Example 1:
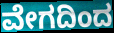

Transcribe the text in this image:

ವೇಗದಿಂದ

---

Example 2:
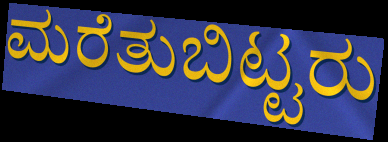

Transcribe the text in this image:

ಮರೆತುಬಿಟ್ಟರು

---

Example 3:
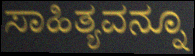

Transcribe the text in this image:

ಸಾಹಿತ್ಯವನ್ನೂ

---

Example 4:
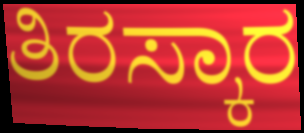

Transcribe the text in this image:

ತಿರಸ್ಕಾರ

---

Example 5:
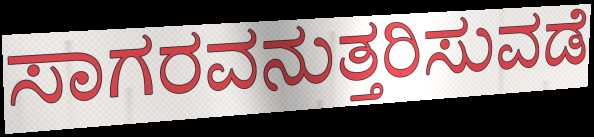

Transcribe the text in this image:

ಸಾಗರವನುತ್ತರಿಸುವಡೆ